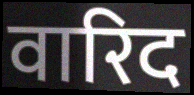
वारिद